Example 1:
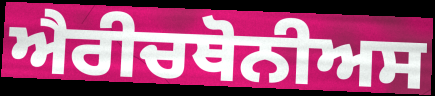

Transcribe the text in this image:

ਐਰੀਚਥੋਨੀਅਸ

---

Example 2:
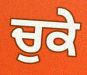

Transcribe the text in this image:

ਚੁਕੇ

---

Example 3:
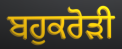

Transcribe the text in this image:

ਬਹੁਕਰੋੜੀ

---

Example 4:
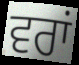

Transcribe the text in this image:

ਵਰਾਂ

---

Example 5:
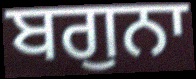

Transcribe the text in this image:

ਬਗੁਨਾ